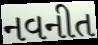
નવનીત